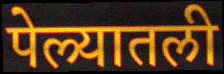
पेल्यातली